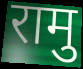
रामु